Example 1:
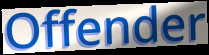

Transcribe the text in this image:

Offender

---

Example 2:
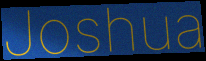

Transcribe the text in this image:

Joshua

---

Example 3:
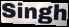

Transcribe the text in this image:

Singh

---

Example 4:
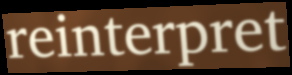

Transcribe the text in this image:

reinterpret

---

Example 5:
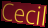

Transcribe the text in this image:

Cecil